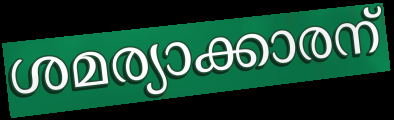
ശമര്യാക്കാരന്